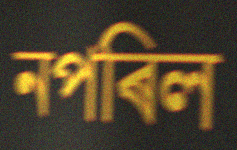
নপৰিল